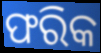
ଫରିକ